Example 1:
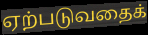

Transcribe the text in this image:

ஏற்படுவதைக்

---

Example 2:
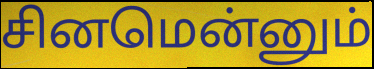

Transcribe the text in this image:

சினமென்னும்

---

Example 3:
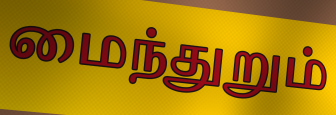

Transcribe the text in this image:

மைந்துறும்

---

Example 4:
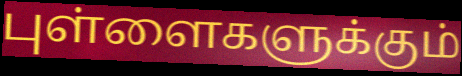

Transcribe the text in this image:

புள்ளைகளுக்கும்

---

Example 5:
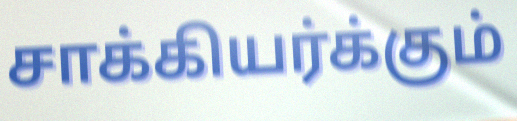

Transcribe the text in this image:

சாக்கியர்க்கும்